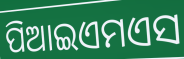
ପିଆଇଏମଏସ